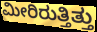
ಮೀರಿರುತ್ತಿತ್ತು